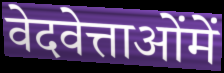
वेदवेत्ताओंमें